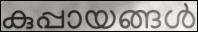
കുപ്പായങ്ങൾ